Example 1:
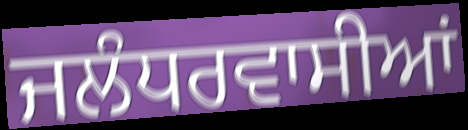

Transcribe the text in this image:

ਜਲੰਧਰਵਾਸੀਆਂ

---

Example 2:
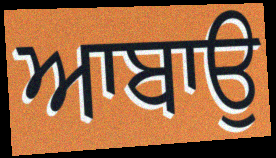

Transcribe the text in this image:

ਆਬਾਉ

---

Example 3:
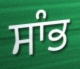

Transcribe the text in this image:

ਸਾੰਭ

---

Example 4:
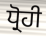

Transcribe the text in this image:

ਧ੍ਰੋਹੀ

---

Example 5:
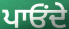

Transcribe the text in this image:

ਪਾਓਂਦੇ